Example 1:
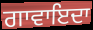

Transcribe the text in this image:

ਗਾਵਾਇਦਾ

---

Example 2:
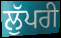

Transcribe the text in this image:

ਲੁੱਪਰੀ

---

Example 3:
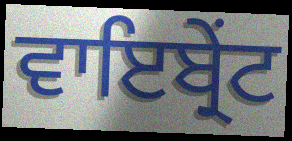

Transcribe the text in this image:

ਵਾਇਬ੍ਰੇਂਟ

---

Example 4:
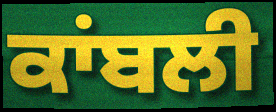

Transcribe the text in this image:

ਕਾਂਬਲੀ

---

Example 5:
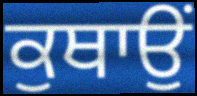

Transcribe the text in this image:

ਕੁਥਾਉਂ